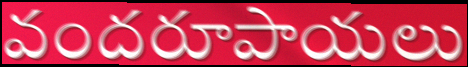
వందరూపాయలు